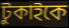
টুকাইকে